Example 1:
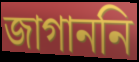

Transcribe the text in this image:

জাগাননি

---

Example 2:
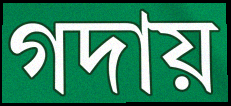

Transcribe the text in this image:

গদায়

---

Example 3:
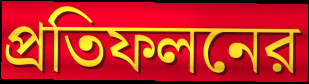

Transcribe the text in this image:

প্রতিফলনের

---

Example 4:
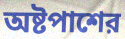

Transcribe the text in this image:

অষ্টপাশের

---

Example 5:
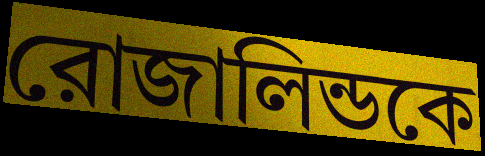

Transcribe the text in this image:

রোজালিন্ডকে